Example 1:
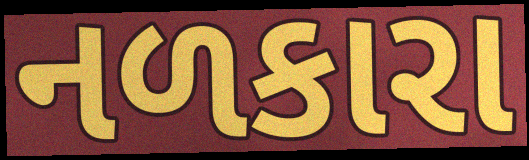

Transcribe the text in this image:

નળકારા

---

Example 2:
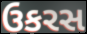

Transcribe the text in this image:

ઉકરસ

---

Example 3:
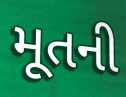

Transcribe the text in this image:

મૂતની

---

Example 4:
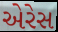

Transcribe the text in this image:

એરેસ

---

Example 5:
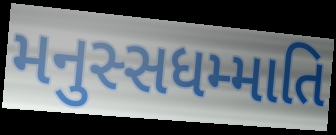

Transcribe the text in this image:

મનુસ્સધમ્માતિ